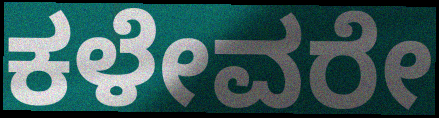
ಕಳೇವರೇ